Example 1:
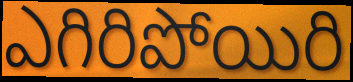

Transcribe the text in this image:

ఎగిరిపోయిరి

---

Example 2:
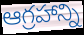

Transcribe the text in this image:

ఆగ్రహాన్ని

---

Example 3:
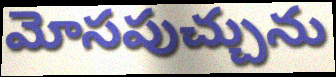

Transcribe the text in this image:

మోసపుచ్చును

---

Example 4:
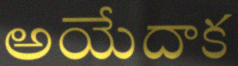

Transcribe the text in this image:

అయేదాక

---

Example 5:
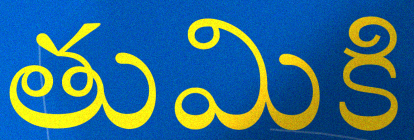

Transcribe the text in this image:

తుమికి